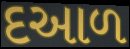
દઆળ